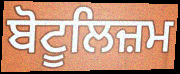
ਬੋਟੂਲਿਜ਼ਮ